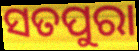
ସତପୁରା